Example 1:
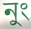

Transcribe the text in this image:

নুং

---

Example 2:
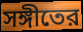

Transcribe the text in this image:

সঙ্গীতের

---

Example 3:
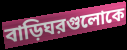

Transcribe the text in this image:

বাড়িঘরগুলোকে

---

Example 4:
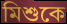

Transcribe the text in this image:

মিশুকে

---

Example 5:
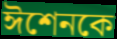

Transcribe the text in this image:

ঈশেনকে